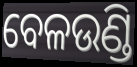
ବେଳଉଣ୍ଡି